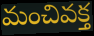
మంచివక్త